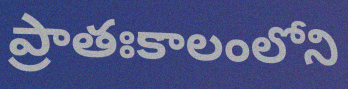
ప్రాతఃకాలంలోని